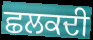
ਛਲਕਦੀ